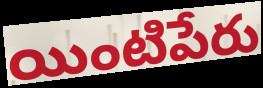
యింటిపేరు